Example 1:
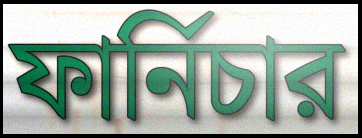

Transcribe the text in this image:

ফার্নিচার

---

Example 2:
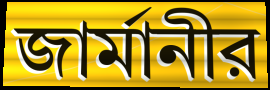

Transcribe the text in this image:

জার্মানীর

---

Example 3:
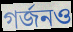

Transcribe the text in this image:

গর্জনও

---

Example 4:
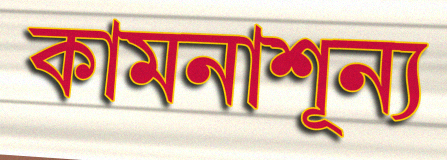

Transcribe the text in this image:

কামনাশূন্য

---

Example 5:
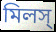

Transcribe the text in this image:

মিলস্